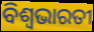
ବିଶ୍ୱଭାରତୀ